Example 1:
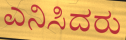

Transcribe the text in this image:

ಎನಿಸಿದರು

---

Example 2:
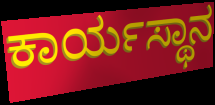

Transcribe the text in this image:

ಕಾರ್ಯಸ್ಥಾನ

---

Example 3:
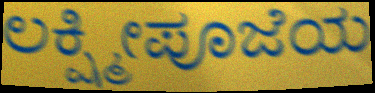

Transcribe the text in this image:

ಲಕ್ಷ್ಮೀಪೂಜೆಯ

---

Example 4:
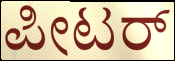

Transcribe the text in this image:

ಪೀಟರ್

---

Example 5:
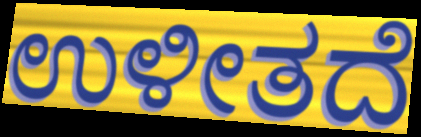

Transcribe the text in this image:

ಉಳೀತದೆ